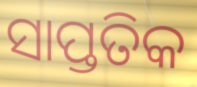
ସାପ୍ତତିକ